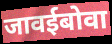
जावईबोवा